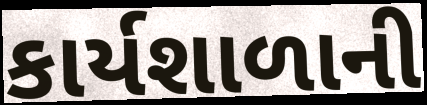
કાર્યશાળાની